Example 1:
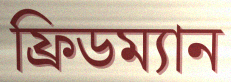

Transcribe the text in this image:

ফ্রিডম্যান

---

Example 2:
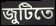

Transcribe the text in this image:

জুটিতে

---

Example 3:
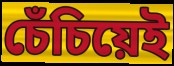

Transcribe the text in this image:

চেঁচিয়েই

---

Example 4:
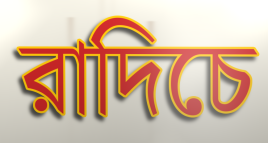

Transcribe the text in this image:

রাদিচে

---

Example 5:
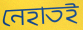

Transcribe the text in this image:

নেহাতই